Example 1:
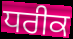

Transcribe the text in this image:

ਧਰੀਕ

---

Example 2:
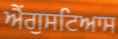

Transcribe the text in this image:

ਐਂਗੁਸਟਿਆਸ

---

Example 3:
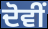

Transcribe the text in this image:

ਦੋਵੀਂ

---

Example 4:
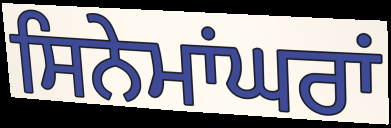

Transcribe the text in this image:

ਸਿਨੇਮਾਂਘਰਾਂ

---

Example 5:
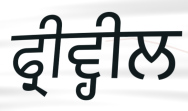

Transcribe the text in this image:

ਫ੍ਰੀਵ੍ਹੀਲ